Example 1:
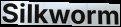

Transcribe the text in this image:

Silkworm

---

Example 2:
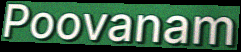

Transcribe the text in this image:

Poovanam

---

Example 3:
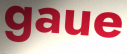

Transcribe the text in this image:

gaue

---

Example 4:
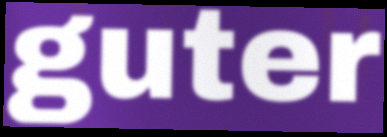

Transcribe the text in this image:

guter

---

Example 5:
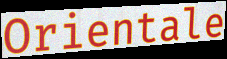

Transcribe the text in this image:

Orientale